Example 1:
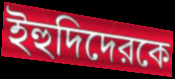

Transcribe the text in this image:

ইহুদিদেরকে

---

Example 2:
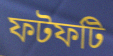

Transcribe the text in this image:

ফটফটি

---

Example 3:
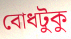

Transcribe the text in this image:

বোধটুকু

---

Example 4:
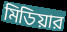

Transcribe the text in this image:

মিডিয়ার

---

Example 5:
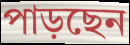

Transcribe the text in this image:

পাড়ছেন